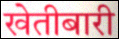
खेतीबारी